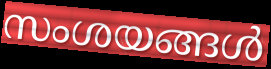
സംശയങ്ങൾ